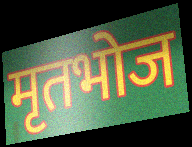
मृतभोज